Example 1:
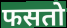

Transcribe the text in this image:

फसतो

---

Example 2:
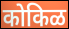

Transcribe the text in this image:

कोकिळ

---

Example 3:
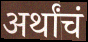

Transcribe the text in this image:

अर्थांचं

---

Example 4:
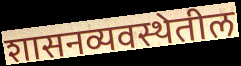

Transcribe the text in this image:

शासनव्यवस्थेतील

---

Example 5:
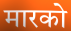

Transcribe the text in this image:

मारको